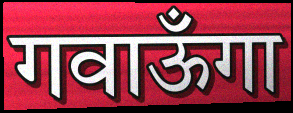
गवाऊँगा